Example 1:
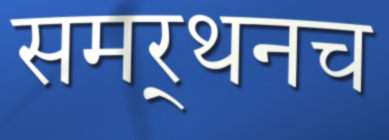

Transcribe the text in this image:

समर्थनच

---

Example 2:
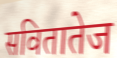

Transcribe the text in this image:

सवितातेज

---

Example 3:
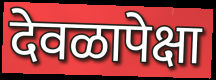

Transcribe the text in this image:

देवळापेक्षा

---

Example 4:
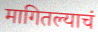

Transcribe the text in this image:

मागितल्याचं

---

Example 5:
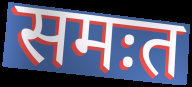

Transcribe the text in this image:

समःत